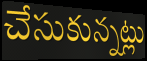
చేసుకున్నట్లు